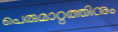
പെരുമാറ്റത്തിനും